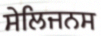
ਸੇਲਿਜਨਸ